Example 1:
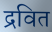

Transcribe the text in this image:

द्रवित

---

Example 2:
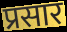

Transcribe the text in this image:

प्रसार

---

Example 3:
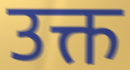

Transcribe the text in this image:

उक्त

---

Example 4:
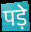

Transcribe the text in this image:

पड़े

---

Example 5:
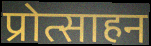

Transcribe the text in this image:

प्रोत्साहन